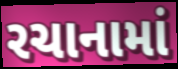
રચાનામાં